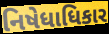
નિષેધાધિકાર